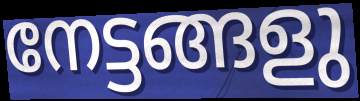
നേട്ടങ്ങളു